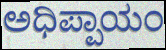
ಅಧಿಪ್ಪಾಯಂ